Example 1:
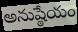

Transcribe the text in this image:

అనుష్ఠేయం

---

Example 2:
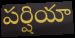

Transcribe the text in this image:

పర్షియా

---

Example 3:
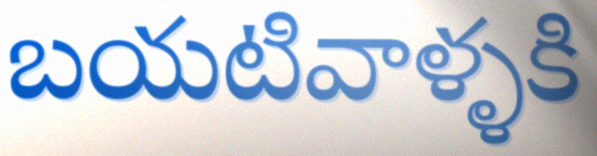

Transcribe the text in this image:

బయటివాళ్ళకి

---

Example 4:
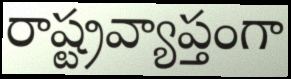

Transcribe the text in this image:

రాష్ట్రవ్యాప్తంగా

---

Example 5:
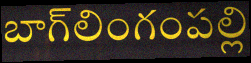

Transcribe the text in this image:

బాగ్‌లింగంపల్లి